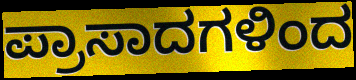
ಪ್ರಾಸಾದಗಳಿಂದ